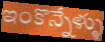
ఇంకొన్నేళ్ళు